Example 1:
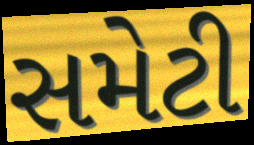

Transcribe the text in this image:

સમેટી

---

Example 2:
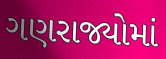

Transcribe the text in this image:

ગણરાજ્યોમાં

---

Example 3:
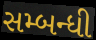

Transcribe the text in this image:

સમ્બન્ધી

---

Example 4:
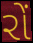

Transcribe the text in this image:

રોં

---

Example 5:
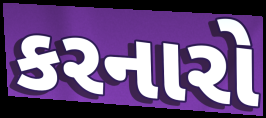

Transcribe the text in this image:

કરનારો